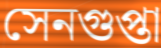
সেনগুপ্তা